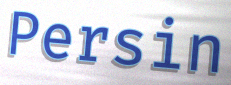
Persin